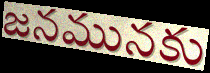
జనమునకు